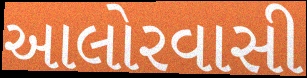
આલોરવાસી